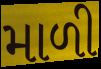
માળી